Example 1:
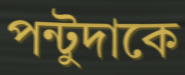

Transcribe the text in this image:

পন্টুদাকে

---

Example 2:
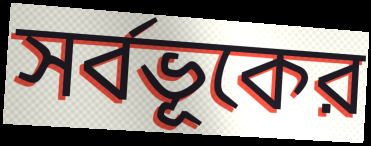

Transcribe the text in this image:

সর্বভূকের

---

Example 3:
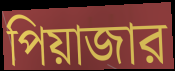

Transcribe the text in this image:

পিয়াজার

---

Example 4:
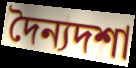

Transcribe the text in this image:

দৈন্যদশা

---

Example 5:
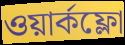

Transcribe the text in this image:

ওয়ার্কফ্লো